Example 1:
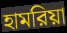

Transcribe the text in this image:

হামরিয়া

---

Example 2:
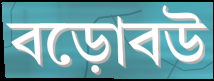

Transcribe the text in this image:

বড়োবউ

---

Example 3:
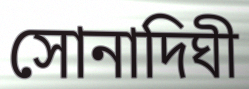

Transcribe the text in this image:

সোনাদিঘী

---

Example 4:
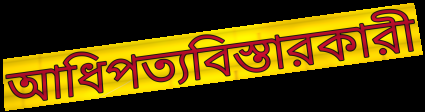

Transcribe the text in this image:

আধিপত্যবিস্তারকারী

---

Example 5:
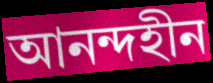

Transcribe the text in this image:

আনন্দহীন